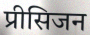
प्रीसिजन